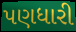
પણધારી